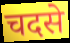
चदसे